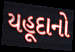
યહૂદાનો